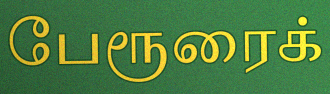
பேரூரைக்